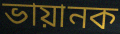
ভায়ানক